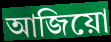
আজিয়ো